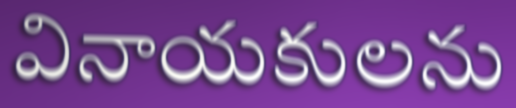
వినాయకులను